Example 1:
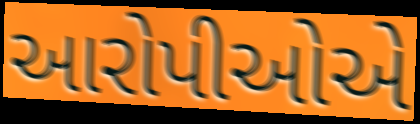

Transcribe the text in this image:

આરોપીઓએ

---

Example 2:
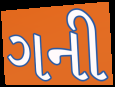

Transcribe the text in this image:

ગની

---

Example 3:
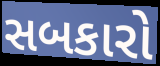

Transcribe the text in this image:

સબકારો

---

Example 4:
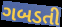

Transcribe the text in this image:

ગબડતી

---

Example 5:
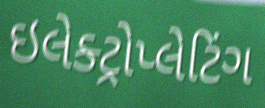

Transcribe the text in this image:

ઇલેક્ટ્રોપ્લેટિંગ